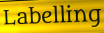
Labelling